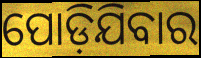
ପୋଡ଼ିଯିବାର